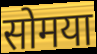
सोमया